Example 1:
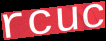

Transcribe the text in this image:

rcuc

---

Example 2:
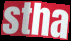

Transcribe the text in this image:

stha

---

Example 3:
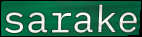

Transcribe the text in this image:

sarake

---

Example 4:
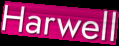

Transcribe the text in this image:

Harwell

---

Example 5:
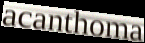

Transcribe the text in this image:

acanthoma